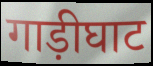
गाड़ीघाट